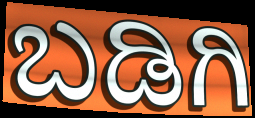
ಬಡಿಗಿ